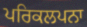
ਪਰਿਕਲਪਨਾ